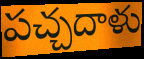
పచ్చదాళు